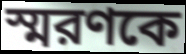
স্মরণকে